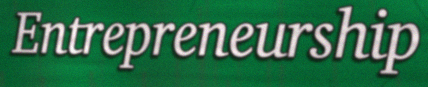
Entrepreneurship